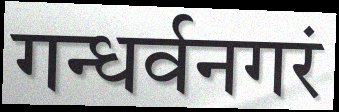
गन्धर्वनगरं